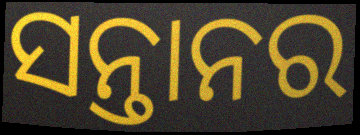
ସନ୍ତାନର